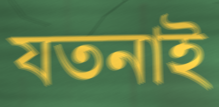
যতনাই